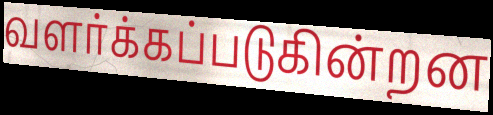
வளர்க்கப்படுகின்றன